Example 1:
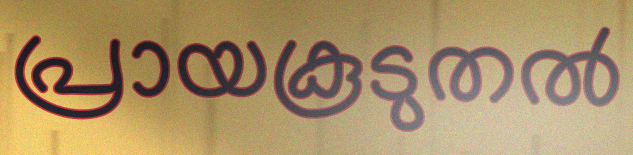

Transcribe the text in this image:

പ്രായകൂടുതൽ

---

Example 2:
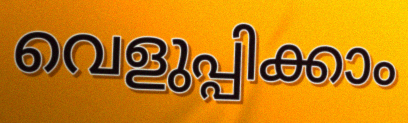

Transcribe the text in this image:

വെളുപ്പിക്കാം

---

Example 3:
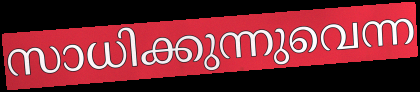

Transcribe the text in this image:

സാധിക്കുന്നുവെന്ന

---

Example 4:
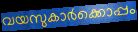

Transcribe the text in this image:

വയസുകാർക്കൊപ്പം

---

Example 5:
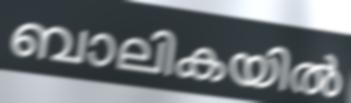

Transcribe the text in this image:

ബാലികയിൽ